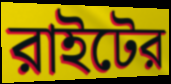
রাইটের